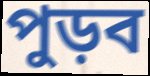
পুড়ব